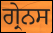
ਗ੍ਰੇਨਸ